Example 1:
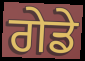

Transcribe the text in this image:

ਗੇਡੇ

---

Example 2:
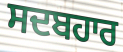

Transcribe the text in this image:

ਸਦਬਹਾਰ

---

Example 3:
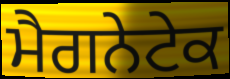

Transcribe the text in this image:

ਮੈਗਨੇਟੇਕ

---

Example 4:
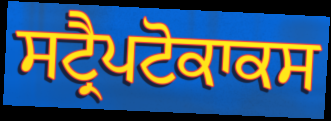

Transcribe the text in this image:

ਸਟ੍ਰੈਪਟੋਕਾਕਸ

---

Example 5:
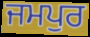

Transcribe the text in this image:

ਜਮਪੁਰ